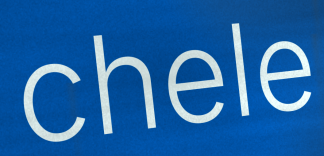
chele